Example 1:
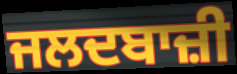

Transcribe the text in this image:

ਜਲਦਬਾਜ਼ੀ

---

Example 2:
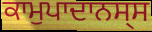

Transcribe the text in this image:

ਕਾਮੁਪਾਦਾਨਸ੍ਸ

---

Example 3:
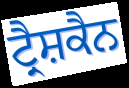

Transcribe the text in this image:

ਟ੍ਰੈਸ਼ਕੈਨ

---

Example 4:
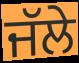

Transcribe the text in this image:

ਜੱਲੇ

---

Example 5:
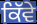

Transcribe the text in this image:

ਕਿੱਵੇ